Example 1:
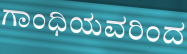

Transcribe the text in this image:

ಗಾಂಧಿಯವರಿಂದ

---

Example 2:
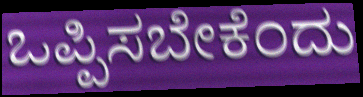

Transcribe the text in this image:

ಒಪ್ಪಿಸಬೇಕೆಂದು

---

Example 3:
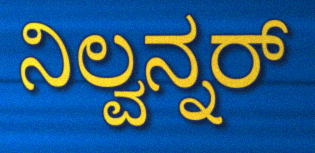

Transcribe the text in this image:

ನಿಲ್ವನ್ನರ್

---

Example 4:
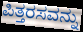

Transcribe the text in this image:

ಪಿತ್ತರಸವನ್ನು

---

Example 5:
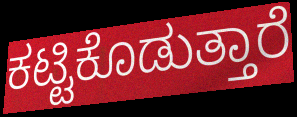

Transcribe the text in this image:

ಕಟ್ಟಿಕೊಡುತ್ತಾರೆ